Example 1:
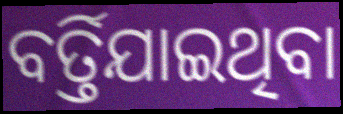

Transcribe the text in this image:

ବର୍ତ୍ତିଯାଇଥିବା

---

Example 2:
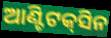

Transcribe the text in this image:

ଆଣ୍ଟିଟକ୍‌ସିନ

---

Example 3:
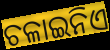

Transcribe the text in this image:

ଚଳାଇନିଏ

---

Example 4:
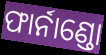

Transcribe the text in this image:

ଫାର୍ନାଣ୍ଡୋ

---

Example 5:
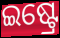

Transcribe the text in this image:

ଇଷ୍ଟ୍ରେ